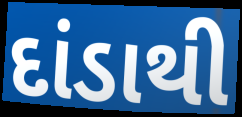
દાંડાથી